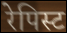
रेपिस्ट